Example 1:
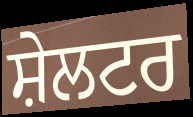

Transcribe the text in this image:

ਸ਼ੇਲਟਰ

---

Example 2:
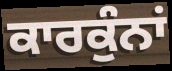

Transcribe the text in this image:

ਕਾਰਕੁੰਨਾਂ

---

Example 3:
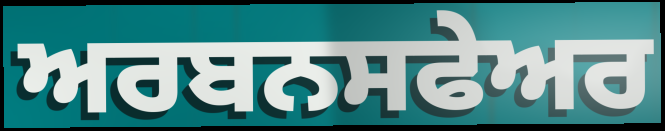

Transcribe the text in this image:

ਅਰਬਨਸਫੇਅਰ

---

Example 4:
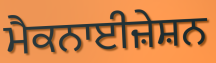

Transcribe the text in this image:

ਮੈਕਨਾਈਜ਼ੇਸ਼ਨ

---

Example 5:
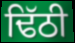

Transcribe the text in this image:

ਢਿੱਠੀ